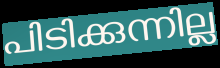
പിടിക്കുന്നില്ല